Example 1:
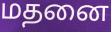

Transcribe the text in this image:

மதனை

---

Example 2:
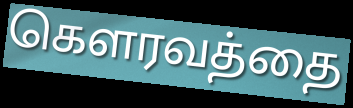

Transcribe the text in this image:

கௌரவத்தை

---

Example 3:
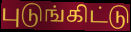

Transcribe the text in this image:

புடுங்கிட்டு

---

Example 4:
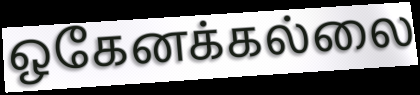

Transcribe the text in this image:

ஒகேனக்கல்லை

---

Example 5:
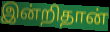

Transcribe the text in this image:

இன்றிதான்